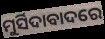
ମୁର୍ସିଦାବାଦରେ